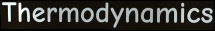
Thermodynamics